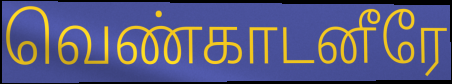
வெண்காடனீரே